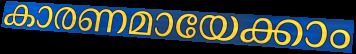
കാരണമായേക്കാം